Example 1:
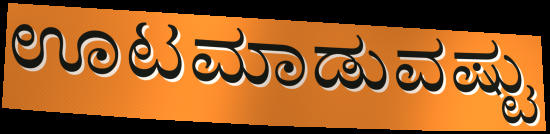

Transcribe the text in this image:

ಊಟಮಾಡುವಷ್ಟು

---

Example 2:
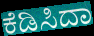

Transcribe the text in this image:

ಕೆಡಿಸಿದಾ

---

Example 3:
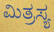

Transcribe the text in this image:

ಮಿತ್ರಸ್ಯ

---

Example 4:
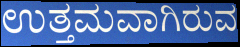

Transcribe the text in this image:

ಉತ್ತಮವಾಗಿರುವ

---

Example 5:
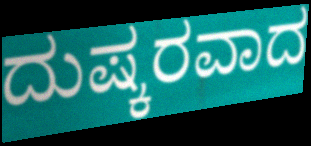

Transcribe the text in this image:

ದುಷ್ಕರವಾದ